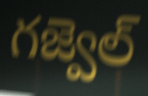
గజ్వెల్